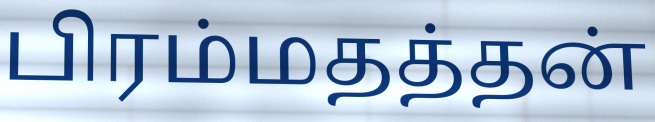
பிரம்மதத்தன்